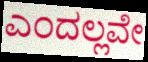
ಎಂದಲ್ಲವೇ